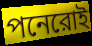
পনেরোই